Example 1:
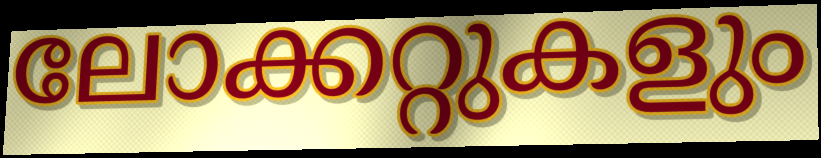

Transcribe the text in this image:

ലോക്കറ്റുകളും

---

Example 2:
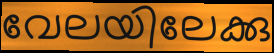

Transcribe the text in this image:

വേലയിലേക്കു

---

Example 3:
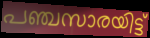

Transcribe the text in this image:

പഞ്ചസാരയിട്ട്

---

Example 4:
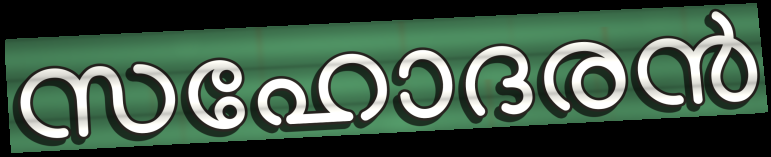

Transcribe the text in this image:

സഹോദരൻ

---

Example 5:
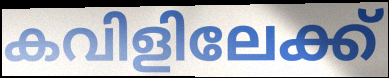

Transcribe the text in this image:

കവിളിലേക്ക്